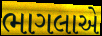
ભાગલાએ